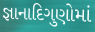
જ્ઞાનાદિગુણોમાં